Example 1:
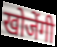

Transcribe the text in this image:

खोजेंगी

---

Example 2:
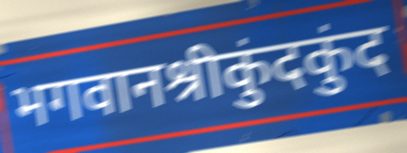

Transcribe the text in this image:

भगवानश्रीकुंदकुंद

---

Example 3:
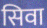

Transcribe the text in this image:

सिवा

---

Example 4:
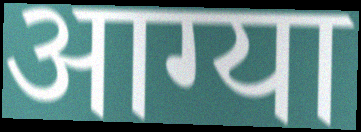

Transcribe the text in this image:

आग्या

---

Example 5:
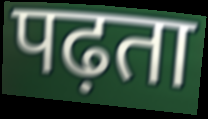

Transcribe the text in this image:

पढ़ता